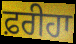
ਫ਼ਰੀਹਾ